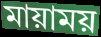
মায়াময়